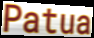
Patua